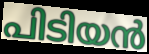
പിടിയൻ